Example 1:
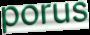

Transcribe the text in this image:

porus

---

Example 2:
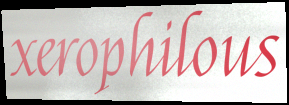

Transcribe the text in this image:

xerophilous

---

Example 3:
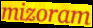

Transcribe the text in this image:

mizoram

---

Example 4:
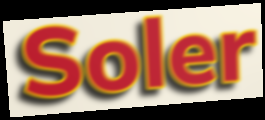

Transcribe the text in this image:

Soler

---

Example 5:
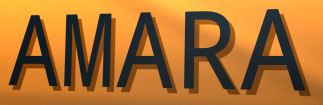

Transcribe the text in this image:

AMARA